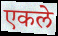
एकले